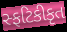
સ્ફટિકીકૃત